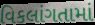
વિકલાંગતામાં